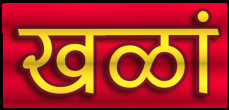
खळां